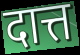
दात्त